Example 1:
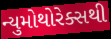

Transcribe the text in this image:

ન્યુમોથોરેક્સથી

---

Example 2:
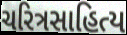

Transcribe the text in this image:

ચરિત્રસાહિત્ય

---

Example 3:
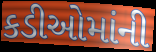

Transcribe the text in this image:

કડીઓમાંની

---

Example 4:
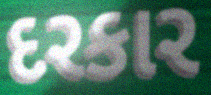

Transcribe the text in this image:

દરકાર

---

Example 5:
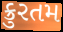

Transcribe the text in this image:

ક્રુરતમ